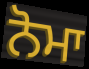
ਨੋਮਾ